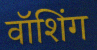
वॉशिंग